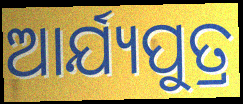
ଆର୍ଯ୍ୟପୁତ୍ର